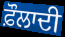
ਫ਼ੌਲਾਦੀ